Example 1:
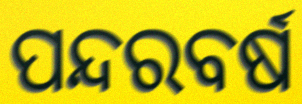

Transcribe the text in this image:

ପନ୍ଦରବର୍ଷ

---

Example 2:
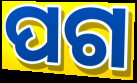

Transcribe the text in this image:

ପଗ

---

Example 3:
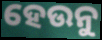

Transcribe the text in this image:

ହେଉନୁ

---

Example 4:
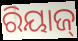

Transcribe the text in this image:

ରିୟାଜ୍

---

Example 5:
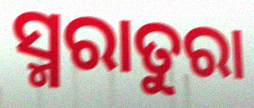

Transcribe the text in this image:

ସ୍ମରାତୁରା